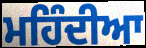
ਮਹਿੰਦੀਆ